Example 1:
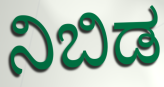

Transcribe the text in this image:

ನಿಬಿಡ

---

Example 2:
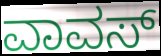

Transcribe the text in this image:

ವಾವಸ್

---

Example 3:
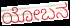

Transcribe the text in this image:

ಯೋಬನ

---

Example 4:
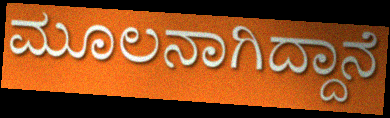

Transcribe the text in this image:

ಮೂಲನಾಗಿದ್ದಾನೆ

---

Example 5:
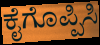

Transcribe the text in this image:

ಕೈಗೊಪ್ಪಿಸಿ